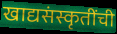
खाद्यसंस्कृतींची